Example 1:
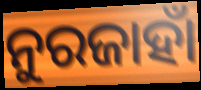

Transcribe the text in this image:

ନୁରଜାହାଁ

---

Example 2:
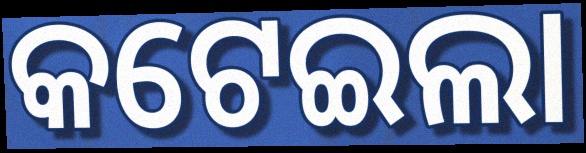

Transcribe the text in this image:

କଟେଇଲା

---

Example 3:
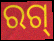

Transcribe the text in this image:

ରଗ୍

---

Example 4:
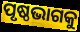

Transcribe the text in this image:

ପୃଷ୍ଠଭାଗକୁ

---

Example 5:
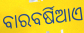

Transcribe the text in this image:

ବାରବର୍ଷିଆଏ